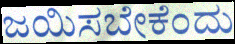
ಜಯಿಸಬೇಕೆಂದು